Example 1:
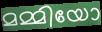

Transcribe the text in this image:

മമ്മിയോ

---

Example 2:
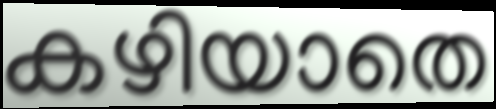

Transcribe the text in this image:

കഴിയാതെ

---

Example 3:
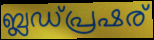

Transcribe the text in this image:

ബ്ലഡ്പ്രഷര്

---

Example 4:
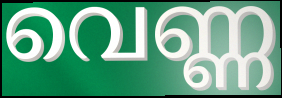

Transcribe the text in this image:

വെണ്ണ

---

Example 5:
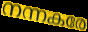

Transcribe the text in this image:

നന്നകരേ